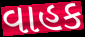
વાહક